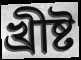
খ্ৰীষ্ট